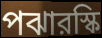
পঝারস্কি